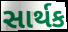
સાર્થક